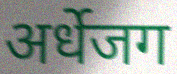
अर्धेजग